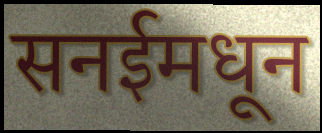
सनईमधून